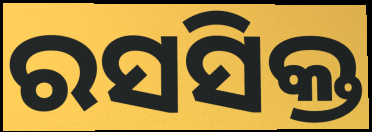
ରସସିକ୍ତ